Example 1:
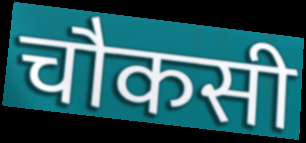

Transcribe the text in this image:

चौकसी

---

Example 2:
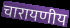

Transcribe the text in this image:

चारायणीय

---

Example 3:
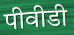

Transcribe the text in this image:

पीवीडी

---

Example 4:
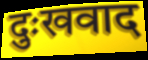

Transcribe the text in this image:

दुःखवाद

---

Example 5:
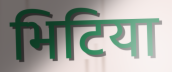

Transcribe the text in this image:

भिटिया